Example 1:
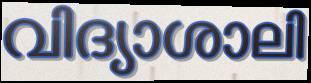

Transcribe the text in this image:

വിദ്യാശാലി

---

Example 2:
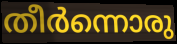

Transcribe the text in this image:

തീർന്നൊരു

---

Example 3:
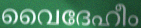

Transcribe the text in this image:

വൈദേഹീം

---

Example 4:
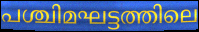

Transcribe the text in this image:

പശ്ചിമഘട്ടത്തിലെ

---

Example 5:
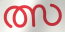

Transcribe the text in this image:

ത്സ